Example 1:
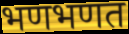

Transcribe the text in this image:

भणभणत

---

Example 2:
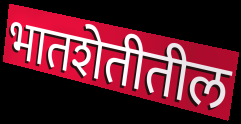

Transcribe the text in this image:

भातशेतीतील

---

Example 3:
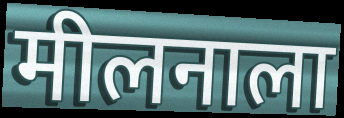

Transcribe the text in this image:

मीलनाला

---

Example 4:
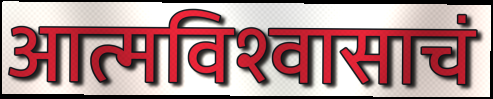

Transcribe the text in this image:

आत्मविश्वासाचं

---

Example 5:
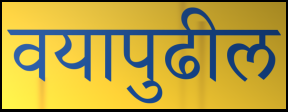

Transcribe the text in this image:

वयापुढील